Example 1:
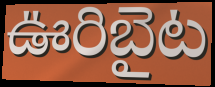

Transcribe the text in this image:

ఊరిబైట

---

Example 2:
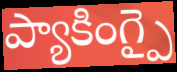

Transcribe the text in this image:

ప్యాకింగ్పై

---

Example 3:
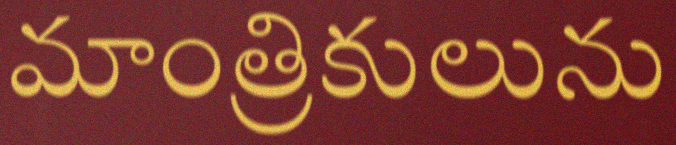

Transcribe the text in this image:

మాంత్రికులును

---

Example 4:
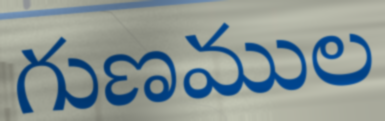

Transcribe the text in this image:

గుణముల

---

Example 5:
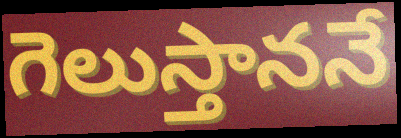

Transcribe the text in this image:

గెలుస్తాననే